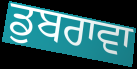
ਡੁਬਰਾਵਾ